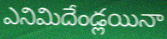
ఎనిమిదేండ్లయినా